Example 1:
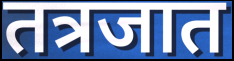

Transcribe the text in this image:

तत्रजात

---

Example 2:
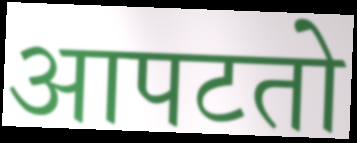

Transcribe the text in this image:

आपटतो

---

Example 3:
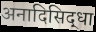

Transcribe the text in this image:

अनादिसिद्धा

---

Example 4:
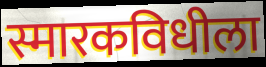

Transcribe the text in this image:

स्मारकविधीला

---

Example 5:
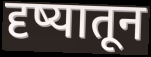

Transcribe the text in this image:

दृष्यातून